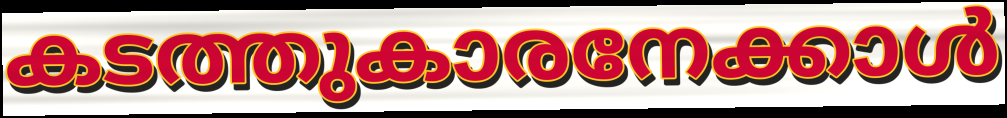
കടത്തുകാരനേക്കാൾ